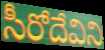
సీరోదేవిని